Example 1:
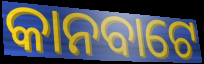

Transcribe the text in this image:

କାନବାଟେ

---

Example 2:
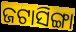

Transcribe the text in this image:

ଜଟାସିଙ୍ଗା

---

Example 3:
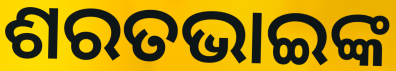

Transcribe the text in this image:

ଶରତଭାଇଙ୍କ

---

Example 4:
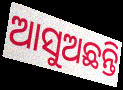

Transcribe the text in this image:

ଆସୁଅଛନ୍ତି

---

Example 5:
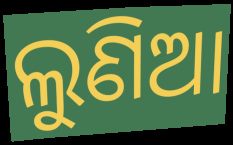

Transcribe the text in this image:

ଲୁଣିଆ